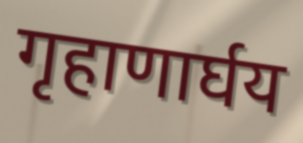
गृहाणार्घय